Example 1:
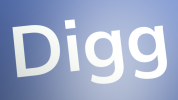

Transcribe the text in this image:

Digg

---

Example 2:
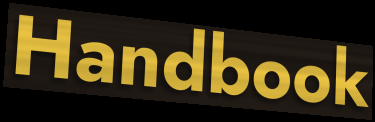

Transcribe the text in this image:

Handbook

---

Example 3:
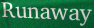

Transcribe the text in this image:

Runaway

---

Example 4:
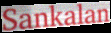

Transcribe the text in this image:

Sankalan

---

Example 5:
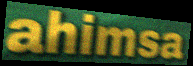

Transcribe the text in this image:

ahimsa